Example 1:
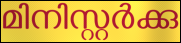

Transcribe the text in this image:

മിനിസ്റ്റർക്കു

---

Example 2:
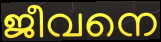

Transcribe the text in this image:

ജീവനെ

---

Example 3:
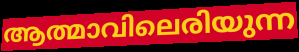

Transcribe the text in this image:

ആത്മാവിലെരിയുന്ന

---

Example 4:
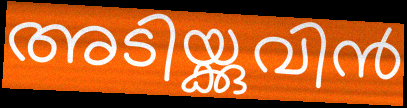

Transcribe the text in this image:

അടിയ്ക്കുവിൻ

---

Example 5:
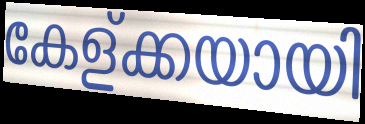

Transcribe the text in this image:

കേള്ക്കയായി